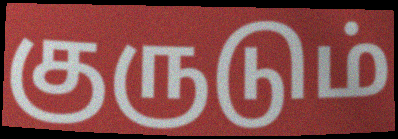
குருடும்